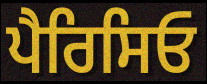
ਪੈਰਿਸਿਓ